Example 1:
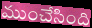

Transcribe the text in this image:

ముంచేసింది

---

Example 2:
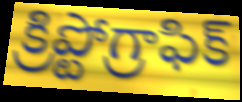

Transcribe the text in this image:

క్రిప్టోగ్రాఫిక్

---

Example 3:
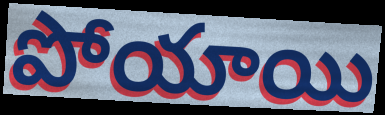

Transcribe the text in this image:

పోయాయి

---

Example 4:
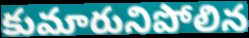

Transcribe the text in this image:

కుమారునిపోలిన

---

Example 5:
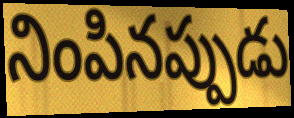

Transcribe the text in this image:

నింపినప్పుడు